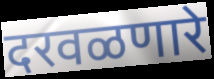
दरवळणारे